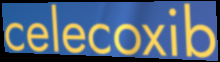
celecoxib